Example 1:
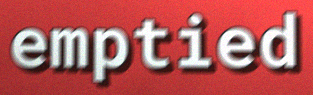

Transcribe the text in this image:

emptied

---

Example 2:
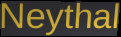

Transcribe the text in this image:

Neythal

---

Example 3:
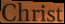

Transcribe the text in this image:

Christ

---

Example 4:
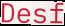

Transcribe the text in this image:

Desf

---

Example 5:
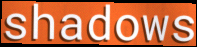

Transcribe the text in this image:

shadows